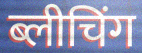
ब्‍लीचिंग